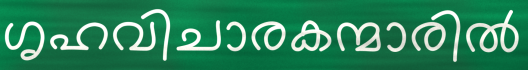
ഗൃഹവിചാരകന്മാരിൽ